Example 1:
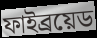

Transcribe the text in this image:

ফাইব্রয়েড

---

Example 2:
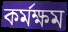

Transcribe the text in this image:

কর্মক্ষম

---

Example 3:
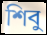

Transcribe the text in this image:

শিবু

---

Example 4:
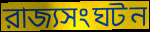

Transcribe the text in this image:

রাজ্যসংঘটন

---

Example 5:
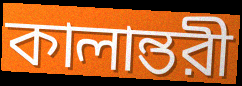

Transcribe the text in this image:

কালান্তরী